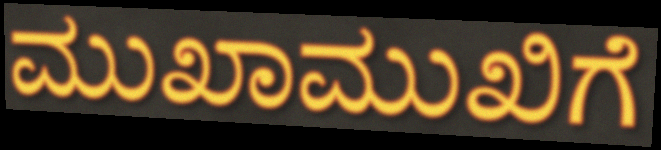
ಮುಖಾಮುಖಿಗೆ